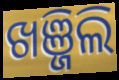
ଖଞ୍ଜିଲି